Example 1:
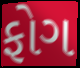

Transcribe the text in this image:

ફોગ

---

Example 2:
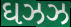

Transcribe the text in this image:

ઘઝઝ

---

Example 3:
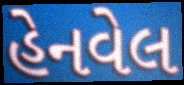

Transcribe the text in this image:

હેનવેલ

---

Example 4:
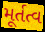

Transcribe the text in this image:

મૂર્તત્વ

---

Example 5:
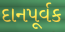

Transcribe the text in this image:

દાનપૂર્વક